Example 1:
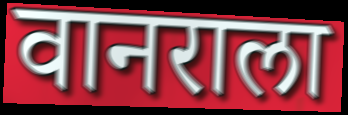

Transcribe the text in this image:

वानराला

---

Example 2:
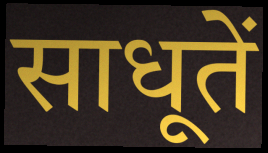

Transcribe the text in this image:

साधूतें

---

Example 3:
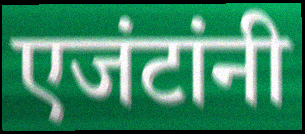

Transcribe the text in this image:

एजंटांनी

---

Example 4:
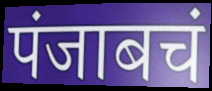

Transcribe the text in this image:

पंजाबचं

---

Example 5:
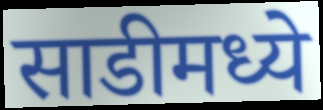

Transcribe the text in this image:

साडीमध्ये